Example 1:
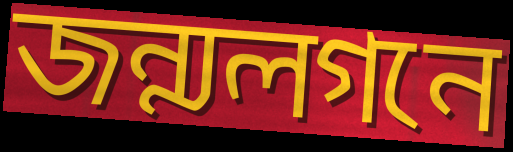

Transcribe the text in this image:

জন্মলগনে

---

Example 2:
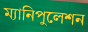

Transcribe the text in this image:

ম্যানিপুলেশন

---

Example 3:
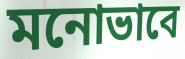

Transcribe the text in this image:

মনোভাবে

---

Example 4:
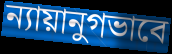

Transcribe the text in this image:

ন্যায়ানুগভাবে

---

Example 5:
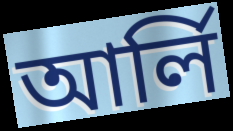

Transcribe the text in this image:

আর্লি